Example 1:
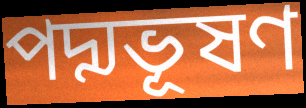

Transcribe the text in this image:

পদ্মভূষণ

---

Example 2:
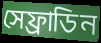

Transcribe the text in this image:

সেফ্রাডিন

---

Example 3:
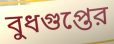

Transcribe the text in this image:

বুধগুপ্তের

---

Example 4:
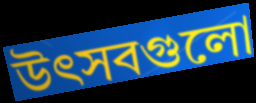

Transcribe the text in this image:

উৎসবগুলো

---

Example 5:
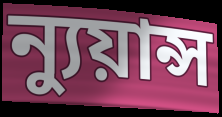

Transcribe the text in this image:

ন্যুয়ান্স